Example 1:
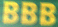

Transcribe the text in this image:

BBB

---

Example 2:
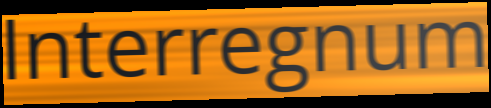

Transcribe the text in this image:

Interregnum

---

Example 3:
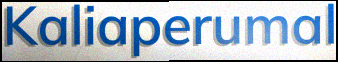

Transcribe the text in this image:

Kaliaperumal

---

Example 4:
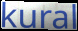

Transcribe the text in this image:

kural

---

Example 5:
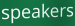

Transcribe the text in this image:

speakers